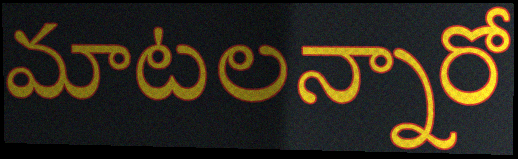
మాటలన్నారో